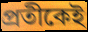
প্রতীকেই